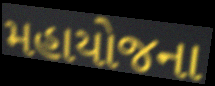
મહાયોજના